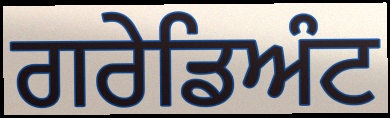
ਗਰੇਡਿਅੰਟ